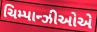
ચિમ્પાન્ઝીઓએ